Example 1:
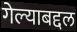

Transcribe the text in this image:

गेल्याबद्दल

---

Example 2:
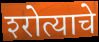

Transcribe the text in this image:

श्रोत्याचे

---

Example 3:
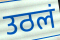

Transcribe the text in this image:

उठलं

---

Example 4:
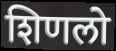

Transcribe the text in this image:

शिणलो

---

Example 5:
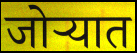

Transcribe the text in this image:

जोऱ्यात